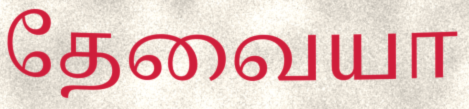
தேவையா